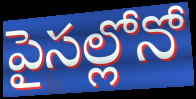
పైసల్లోనో